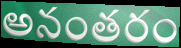
అనంతరం